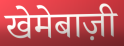
खेमेबाज़ी